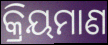
କ୍ରିୟମାଣ